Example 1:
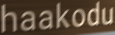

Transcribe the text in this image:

haakodu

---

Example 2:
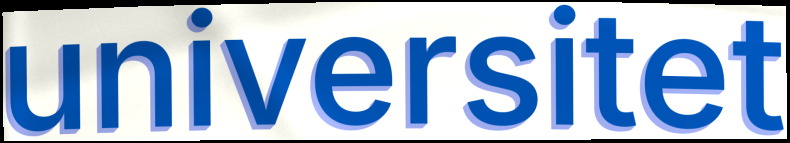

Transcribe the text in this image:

universitet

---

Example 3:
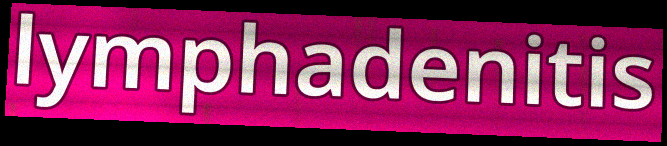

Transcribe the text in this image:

lymphadenitis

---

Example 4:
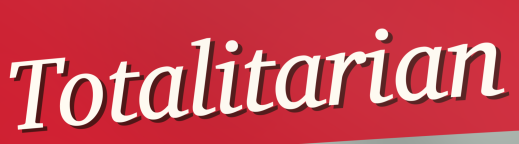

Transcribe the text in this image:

Totalitarian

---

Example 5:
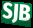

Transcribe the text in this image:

SJB